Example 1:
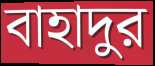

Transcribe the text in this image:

বাহাদুর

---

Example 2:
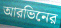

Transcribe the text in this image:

আরভিনের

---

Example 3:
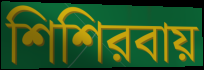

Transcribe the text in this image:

শিশিরবায়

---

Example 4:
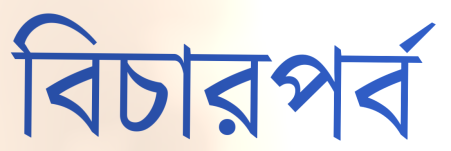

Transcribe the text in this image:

বিচারপর্ব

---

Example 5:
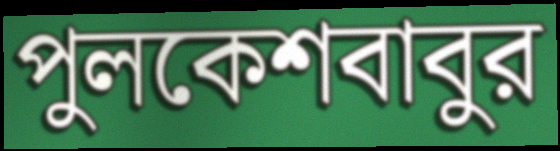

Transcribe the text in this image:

পুলকেশবাবুর